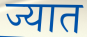
ज्यात